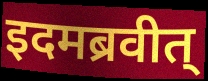
इदमब्रवीत्